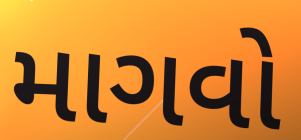
માગવો